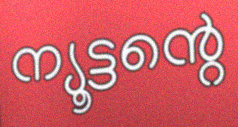
ന്യൂട്ടന്റെ